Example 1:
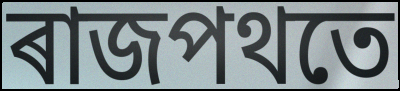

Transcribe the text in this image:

ৰাজপথতে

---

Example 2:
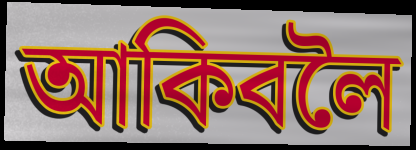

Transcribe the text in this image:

আকিবলৈ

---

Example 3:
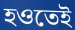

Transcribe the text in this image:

হওতেই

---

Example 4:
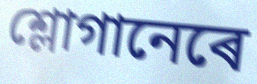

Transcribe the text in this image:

শ্লোগানেৰে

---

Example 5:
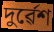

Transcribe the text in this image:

দুৰ্ৱেশ